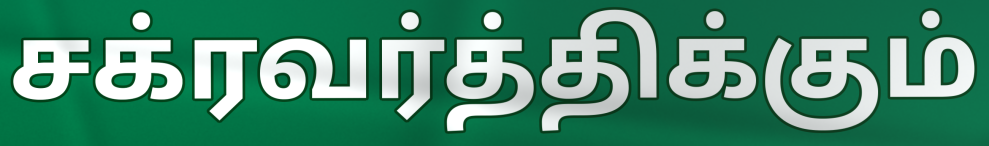
சக்ரவர்த்திக்கும்